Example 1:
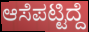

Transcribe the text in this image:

ಆಸೆಪಟ್ಟಿದ್ದೆ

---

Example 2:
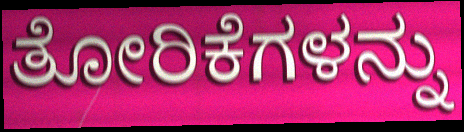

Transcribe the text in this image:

ತೋರಿಕೆಗಳನ್ನು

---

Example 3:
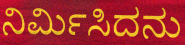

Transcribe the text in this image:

ನಿರ್ಮಿಸಿದನು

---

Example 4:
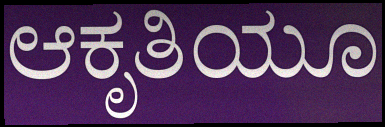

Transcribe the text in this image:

ಆಕೃತಿಯೂ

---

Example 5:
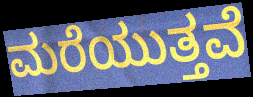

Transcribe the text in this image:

ಮರೆಯುತ್ತವೆ